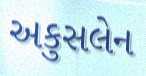
અકુસલેન